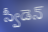
స్వీడెన్